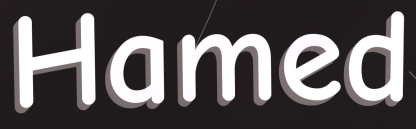
Hamed